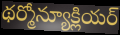
థర్మోన్యూక్లియర్